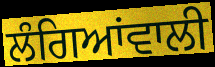
ਲੰਗਿਆਂਵਾਲੀ